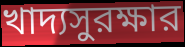
খাদ্যসুরক্ষার